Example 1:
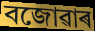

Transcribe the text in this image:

বজোৱাৰ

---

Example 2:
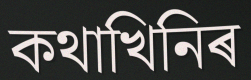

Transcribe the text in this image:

কথাখিনিৰ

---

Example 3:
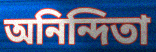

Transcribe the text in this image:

অনিন্দিতা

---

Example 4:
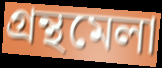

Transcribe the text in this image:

গ্ৰন্থমেলা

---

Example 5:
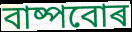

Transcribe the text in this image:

বাষ্পবোৰ